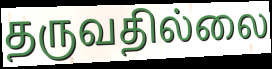
தருவதில்லை